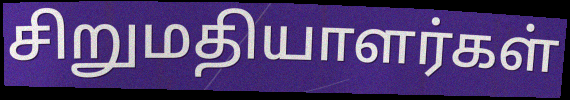
சிறுமதியாளர்கள்